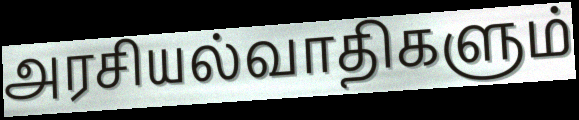
அரசியல்வாதிகளும்